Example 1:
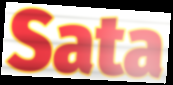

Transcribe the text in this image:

Sata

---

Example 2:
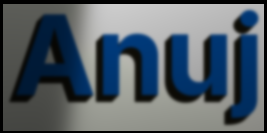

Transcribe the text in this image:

Anuj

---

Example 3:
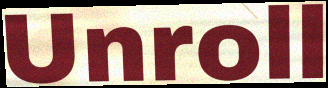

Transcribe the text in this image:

Unroll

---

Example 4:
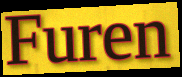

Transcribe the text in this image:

Furen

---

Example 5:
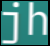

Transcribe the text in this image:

jh